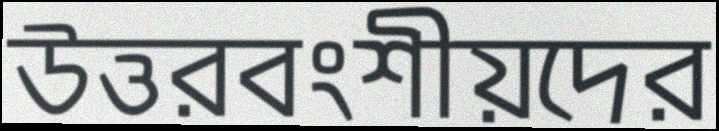
উত্তরবংশীয়দের